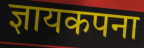
ज्ञायकपना